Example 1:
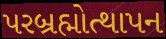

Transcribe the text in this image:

પરબ્રહ્મોત્થાપન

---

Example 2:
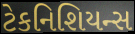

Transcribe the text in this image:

ટેકનિશિયન્સ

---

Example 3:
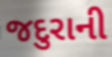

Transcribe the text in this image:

જદુરાની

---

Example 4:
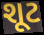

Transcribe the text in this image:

શૂટ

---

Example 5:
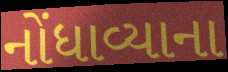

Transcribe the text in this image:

નોંધાવ્યાના